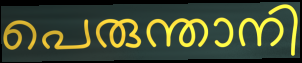
പെരുന്താനി